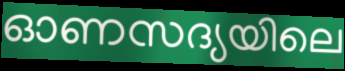
ഓണസദ്യയിലെ